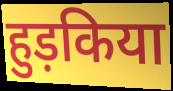
हुड़किया